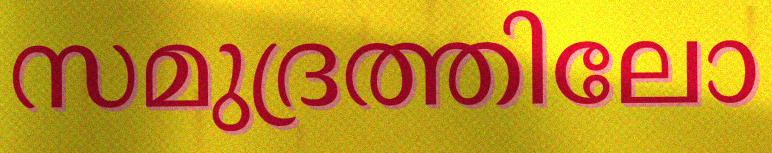
സമുദ്രത്തിലോ